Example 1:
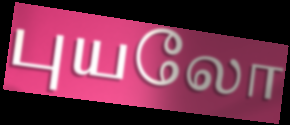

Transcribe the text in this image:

புயலோ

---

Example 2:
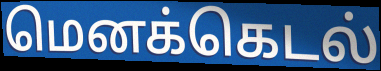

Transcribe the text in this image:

மெனக்கெடல்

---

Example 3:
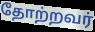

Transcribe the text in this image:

தோற்றவர்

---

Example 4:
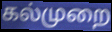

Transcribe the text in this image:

கல்முறை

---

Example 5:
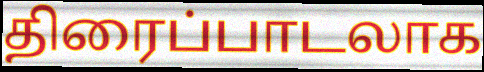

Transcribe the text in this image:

திரைப்பாடலாக